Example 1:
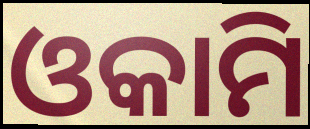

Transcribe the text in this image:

ଓକାମି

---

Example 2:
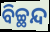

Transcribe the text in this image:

ବିଚ୍ଛନ୍ଦ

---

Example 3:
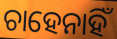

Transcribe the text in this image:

ଚାହେନାହିଁ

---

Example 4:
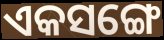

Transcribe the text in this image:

ଏକସଙ୍ଗେ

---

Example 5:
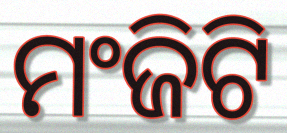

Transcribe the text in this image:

ମଂଜିଟି